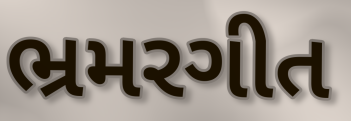
ભ્રમરગીત